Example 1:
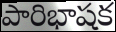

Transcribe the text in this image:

పారిభాషక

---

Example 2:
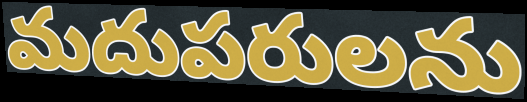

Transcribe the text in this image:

మదుపరులను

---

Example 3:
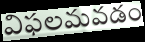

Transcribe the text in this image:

విఫలమవడం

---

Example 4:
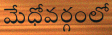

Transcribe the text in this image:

మేధోవర్గంలో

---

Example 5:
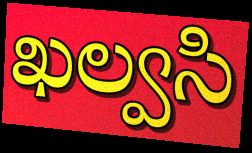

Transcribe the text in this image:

ఖల్వసి